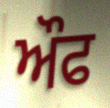
ਔਫ